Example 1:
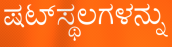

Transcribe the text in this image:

ಷಟ್‌ಸ್ಥಲಗಳನ್ನು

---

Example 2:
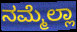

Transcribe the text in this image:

ನಮ್ಮೆಲ್ಲಾ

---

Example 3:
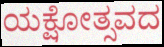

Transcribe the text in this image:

ಯಕ್ಷೋತ್ಸವದ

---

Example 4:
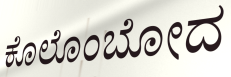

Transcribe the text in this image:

ಕೊಲೊಂಬೋದ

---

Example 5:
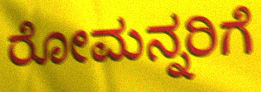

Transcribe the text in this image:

ರೋಮನ್ನರಿಗೆ